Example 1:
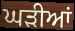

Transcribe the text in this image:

ਘੜੀਆਂ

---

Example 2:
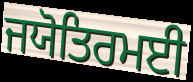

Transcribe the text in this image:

ਜਯੋਤਿਰਮਈ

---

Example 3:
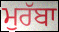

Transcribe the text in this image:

ਮੁਰੱਬਾ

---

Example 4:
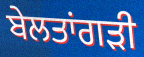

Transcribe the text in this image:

ਬੇਲਤਾਂਗੜੀ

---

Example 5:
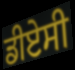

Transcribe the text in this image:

ਡੀਏਸੀ